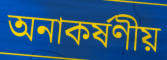
অনাকর্ষণীয়